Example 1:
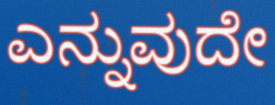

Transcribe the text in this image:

ಎನ್ನುವುದೇ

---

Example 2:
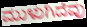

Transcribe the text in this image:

ಮುಳುಗಿದೆವು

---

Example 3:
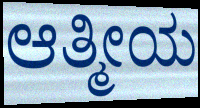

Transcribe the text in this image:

ಆತ್ಮೀಯ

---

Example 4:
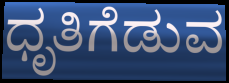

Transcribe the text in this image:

ಧೃತಿಗೆಡುವ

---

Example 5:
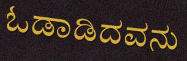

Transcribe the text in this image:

ಓಡಾಡಿದವನು